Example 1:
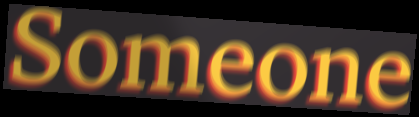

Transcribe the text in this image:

Someone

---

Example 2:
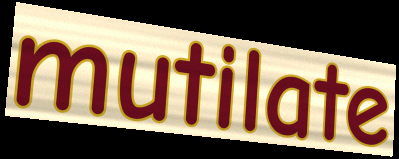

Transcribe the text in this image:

mutilate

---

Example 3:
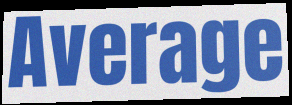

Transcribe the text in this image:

Average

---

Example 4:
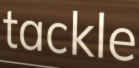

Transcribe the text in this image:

tackle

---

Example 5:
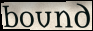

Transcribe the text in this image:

bound